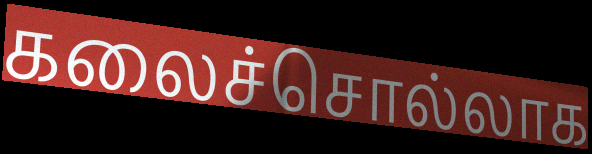
கலைச்சொல்லாக